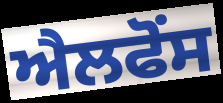
ਐਲਫੋਂਸ